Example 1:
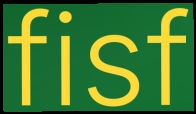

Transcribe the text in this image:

fisf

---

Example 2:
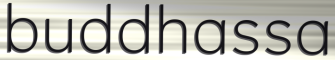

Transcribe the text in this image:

buddhassa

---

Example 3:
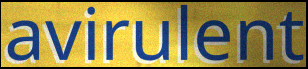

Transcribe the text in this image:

avirulent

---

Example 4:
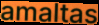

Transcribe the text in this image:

amaltas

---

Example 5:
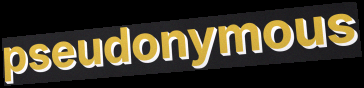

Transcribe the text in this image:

pseudonymous